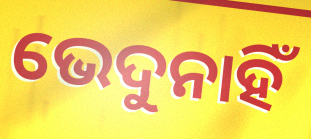
ଭେଦୁନାହିଁ